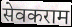
सेवकराम